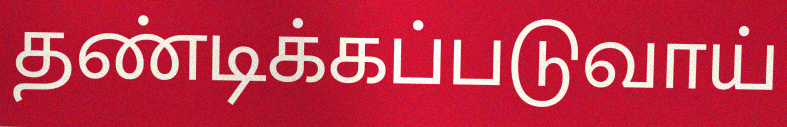
தண்டிக்கப்படுவாய்